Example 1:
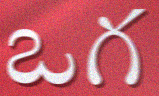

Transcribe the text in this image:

ఒగ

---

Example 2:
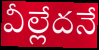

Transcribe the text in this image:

వీల్లేదనే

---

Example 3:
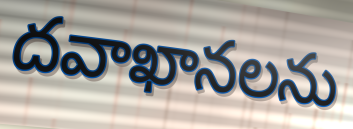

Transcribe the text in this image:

దవాఖానలను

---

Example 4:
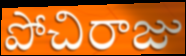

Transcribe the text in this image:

పోచిరాజు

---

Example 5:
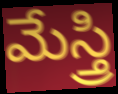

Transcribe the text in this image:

మేస్త్రి